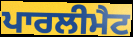
ਪਾਰਲੀਮੈਟ